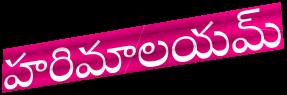
హరిమాలయమ్